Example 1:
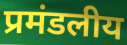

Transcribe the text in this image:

प्रमंडलीय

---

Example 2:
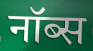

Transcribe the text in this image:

नॉब्स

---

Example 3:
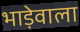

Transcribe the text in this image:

भाड़ेवाला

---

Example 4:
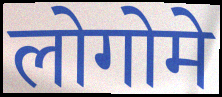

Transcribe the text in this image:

लोगोमे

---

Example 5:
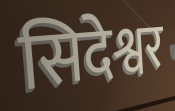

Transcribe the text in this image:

सिदेश्वर